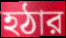
হঠার